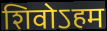
शिवोऽहम